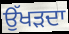
ਉੱਖੜਦਾ